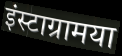
इंस्टाग्रामया